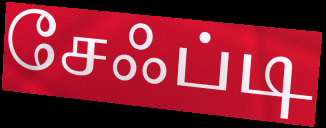
சேஃப்டி